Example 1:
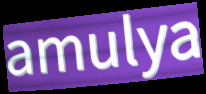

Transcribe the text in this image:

amulya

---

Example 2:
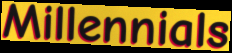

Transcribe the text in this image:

Millennials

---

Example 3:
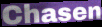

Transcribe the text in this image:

Chasen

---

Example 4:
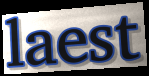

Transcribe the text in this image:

laest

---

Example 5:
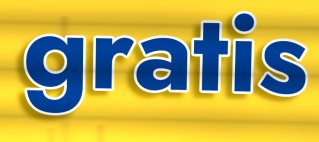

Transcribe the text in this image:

gratis